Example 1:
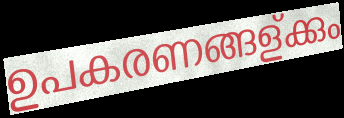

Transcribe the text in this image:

ഉപകരണങ്ങള്ക്കും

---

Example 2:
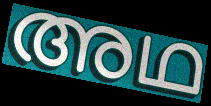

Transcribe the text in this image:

അഥ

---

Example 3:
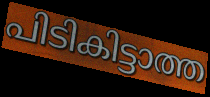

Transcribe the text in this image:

പിടികിട്ടാത്ത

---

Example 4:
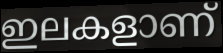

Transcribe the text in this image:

ഇലകളാണ്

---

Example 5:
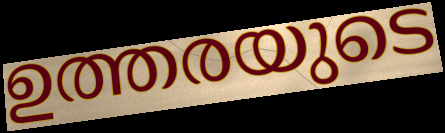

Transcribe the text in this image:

ഉത്തരയുടെ